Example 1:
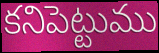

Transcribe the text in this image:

కనిపెట్టుము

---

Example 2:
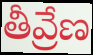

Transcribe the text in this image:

తీవ్రేణ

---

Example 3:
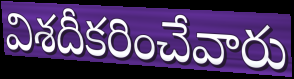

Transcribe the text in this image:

విశదీకరించేవారు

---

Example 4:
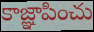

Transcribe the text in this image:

కాజ్ఞాపించు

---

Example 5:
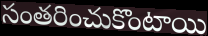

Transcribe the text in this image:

సంతరించుకొంటాయి